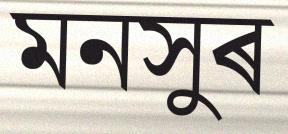
মনসুৰ